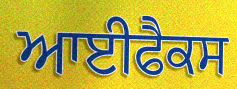
ਆਈਫੈਕਸ